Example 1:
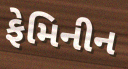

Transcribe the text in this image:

ફેમિનીન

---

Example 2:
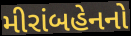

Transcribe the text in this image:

મીરાંબહેનનો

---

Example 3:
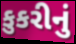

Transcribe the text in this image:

કુકરીનું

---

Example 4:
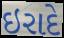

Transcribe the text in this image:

ઇરાદે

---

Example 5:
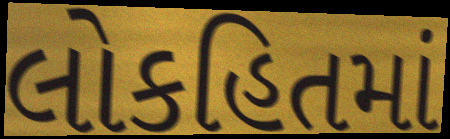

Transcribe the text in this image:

લોકહિતમાં